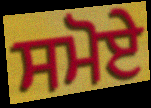
ਸਮੋਏ